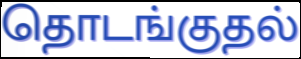
தொடங்குதல்